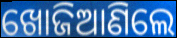
ଖୋଜିଆଣିଲେ